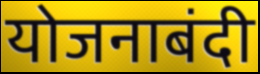
योजनाबंदी